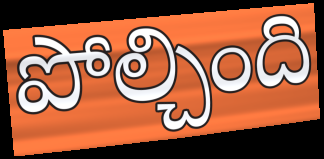
పోల్చింది